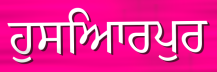
ਹੁਸਆਿਰਪੁਰ